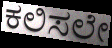
ಕಲಿಸಲೇ